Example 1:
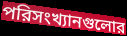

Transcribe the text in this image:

পরিসংখ্যানগুলোর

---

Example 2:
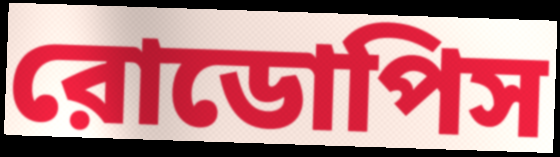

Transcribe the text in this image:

রোডোপিস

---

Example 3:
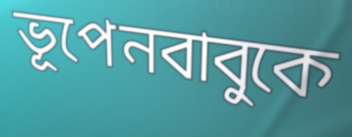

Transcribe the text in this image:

ভূপেনবাবুকে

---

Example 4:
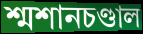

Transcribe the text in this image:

শ্মশানচণ্ডাল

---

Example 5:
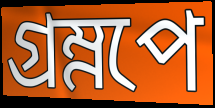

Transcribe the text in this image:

গ্রম্নপে